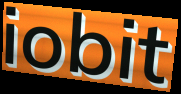
iobit